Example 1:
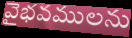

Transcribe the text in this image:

వైభవములను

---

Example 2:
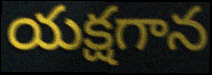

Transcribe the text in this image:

యక్షగాన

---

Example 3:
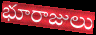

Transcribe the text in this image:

భూరాజులు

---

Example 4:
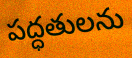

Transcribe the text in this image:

పద్ధతులను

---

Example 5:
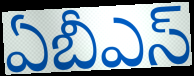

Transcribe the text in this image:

ఏబీఎస్